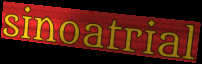
sinoatrial